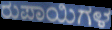
ರುಪಾಯಿಗಳ